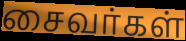
சைவர்கள்